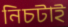
নিচটাই